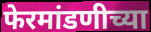
फेरमांडणीच्या